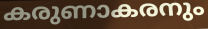
കരുണാകരനും